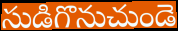
సుడిగొనుచుండె